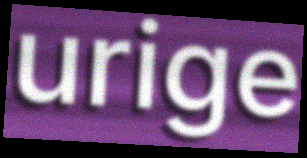
urige